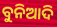
ବୁନିଆଦି